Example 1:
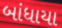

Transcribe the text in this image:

બાંધાયા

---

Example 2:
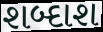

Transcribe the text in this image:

શબ્દાશ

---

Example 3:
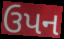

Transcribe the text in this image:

ઉપન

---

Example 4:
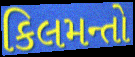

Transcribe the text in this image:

કિલમન્તો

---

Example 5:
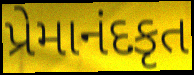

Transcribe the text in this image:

પ્રેમાનંદકૃત